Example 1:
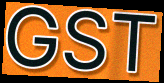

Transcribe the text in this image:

GST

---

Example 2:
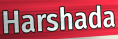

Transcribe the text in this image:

Harshada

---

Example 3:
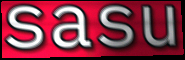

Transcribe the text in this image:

sasu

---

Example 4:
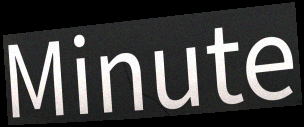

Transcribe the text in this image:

Minute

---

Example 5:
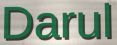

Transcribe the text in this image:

Darul